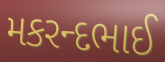
મકરન્દભાઈ